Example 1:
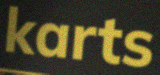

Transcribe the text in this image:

karts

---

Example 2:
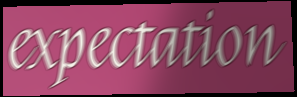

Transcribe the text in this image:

expectation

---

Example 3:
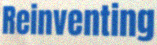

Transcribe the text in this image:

Reinventing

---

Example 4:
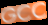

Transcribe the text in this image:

GCC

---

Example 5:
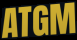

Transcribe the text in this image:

ATGM